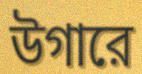
উগারে